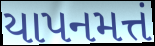
યાપનમત્તં